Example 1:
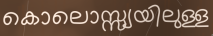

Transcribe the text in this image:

കൊലൊസ്സ്യയിലുള്ള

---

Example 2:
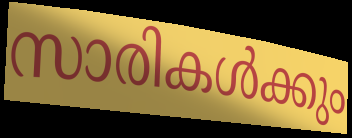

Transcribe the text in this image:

സാരികൾക്കും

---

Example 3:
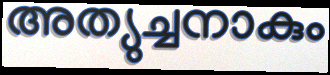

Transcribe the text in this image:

അത്യുച്ചനാകും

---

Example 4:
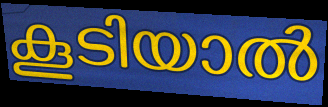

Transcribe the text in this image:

കൂടിയാൽ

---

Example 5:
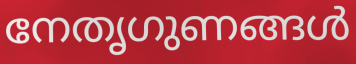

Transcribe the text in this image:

നേതൃഗുണങ്ങൾ